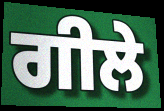
ਗੀਲੇ